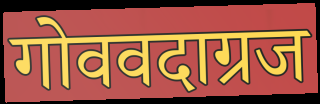
गोववदाग्रज